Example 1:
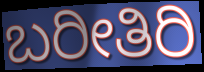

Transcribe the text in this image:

ಬರೀತಿರಿ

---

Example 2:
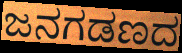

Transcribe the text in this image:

ಜನಗಡಣದ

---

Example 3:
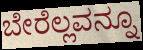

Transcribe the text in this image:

ಬೇರೆಲ್ಲವನ್ನೂ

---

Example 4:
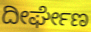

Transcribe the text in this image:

ದೀರ್ಘೇಣ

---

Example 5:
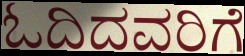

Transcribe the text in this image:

ಓದಿದವರಿಗೆ